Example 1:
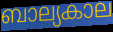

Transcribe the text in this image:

ബാല്യകാല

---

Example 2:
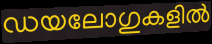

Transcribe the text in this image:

ഡയലോഗുകളിൽ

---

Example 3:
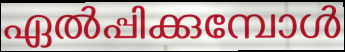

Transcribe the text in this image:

ഏൽപ്പിക്കുമ്പോൾ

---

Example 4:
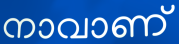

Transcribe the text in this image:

നാവാണ്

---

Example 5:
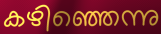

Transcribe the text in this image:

കഴിഞ്ഞെന്നു